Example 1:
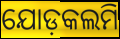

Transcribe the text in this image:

ଯୋଡ଼କଲମି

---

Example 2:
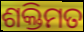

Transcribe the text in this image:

ଶକ୍ତିମତ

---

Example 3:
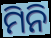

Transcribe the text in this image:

ମିନି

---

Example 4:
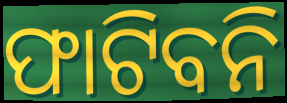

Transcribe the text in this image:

ଫାଟିବନି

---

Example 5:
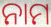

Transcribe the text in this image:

ନାମ